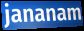
jananam